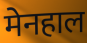
मेनहाल